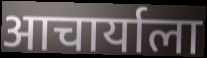
आचार्याला